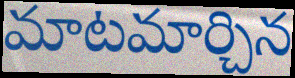
మాటమార్చిన